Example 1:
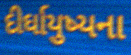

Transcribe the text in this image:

દીર્ઘાયુષ્યના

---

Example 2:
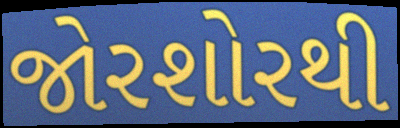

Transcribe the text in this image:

જોરશોરથી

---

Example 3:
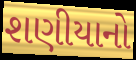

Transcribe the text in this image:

શણીયાનો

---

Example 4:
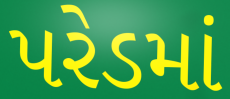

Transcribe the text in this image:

પરેડમાં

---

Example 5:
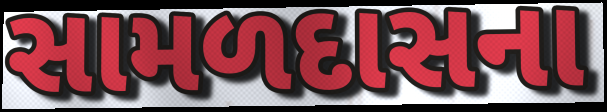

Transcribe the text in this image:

સામળદાસના